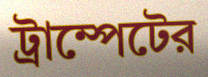
ট্রাম্পেটের